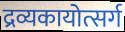
द्रव्यकायोत्सर्ग